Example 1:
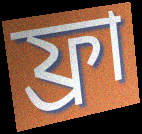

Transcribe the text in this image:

ফ্রা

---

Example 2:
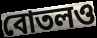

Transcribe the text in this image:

বোতলও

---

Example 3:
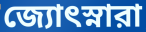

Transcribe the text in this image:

জ্যোৎস্নারা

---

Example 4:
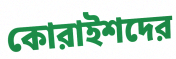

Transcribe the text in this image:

কোরাইশদের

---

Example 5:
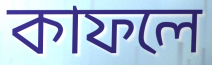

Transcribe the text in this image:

কাফলে